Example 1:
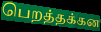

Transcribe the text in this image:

பெறத்தக்கன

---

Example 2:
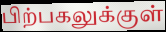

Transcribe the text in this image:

பிற்பகலுக்குள்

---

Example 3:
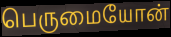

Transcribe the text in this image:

பெருமையோன்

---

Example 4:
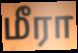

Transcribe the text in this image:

மீரா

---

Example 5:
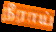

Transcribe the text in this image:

நீராய்